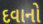
દવાનો